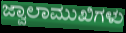
ಜ್ವಾಲಾಮುಖಿಗಳು